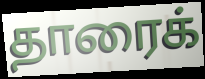
தாரைக்